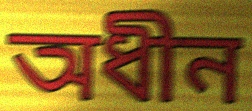
অধীন